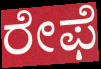
ರೇಫೆ